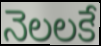
నెలలకే